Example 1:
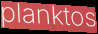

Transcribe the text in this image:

planktos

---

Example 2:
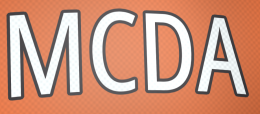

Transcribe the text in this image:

MCDA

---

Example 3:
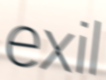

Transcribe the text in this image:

exil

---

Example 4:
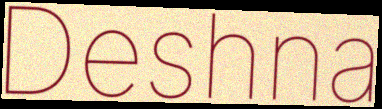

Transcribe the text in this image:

Deshna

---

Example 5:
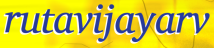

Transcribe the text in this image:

rutavijayarv